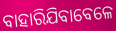
ବାହାରିଯିବାବେଳେ